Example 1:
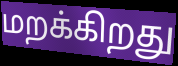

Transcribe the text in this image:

மறக்கிறது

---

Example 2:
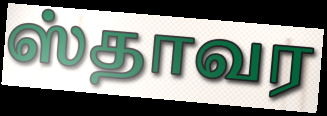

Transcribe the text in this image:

ஸ்தாவர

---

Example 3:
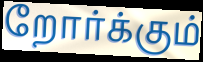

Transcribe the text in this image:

றோர்க்கும்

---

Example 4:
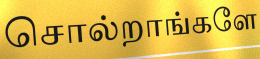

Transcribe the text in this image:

சொல்றாங்களே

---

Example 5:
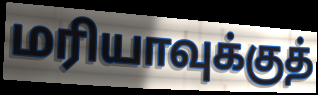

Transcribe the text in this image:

மரியாவுக்குத்